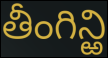
తీంగిన్ఱి